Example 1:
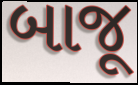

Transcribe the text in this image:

બાજૂ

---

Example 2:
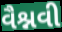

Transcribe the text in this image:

વૈશ્નવી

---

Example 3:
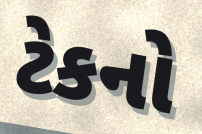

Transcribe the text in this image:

ટેકનો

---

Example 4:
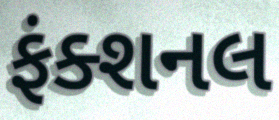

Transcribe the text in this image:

ફંક્શનલ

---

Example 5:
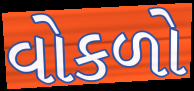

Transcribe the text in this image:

વોકળો